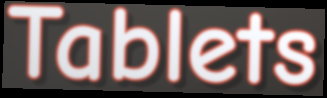
Tablets